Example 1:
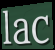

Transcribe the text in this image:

lac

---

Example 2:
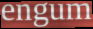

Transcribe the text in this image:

engum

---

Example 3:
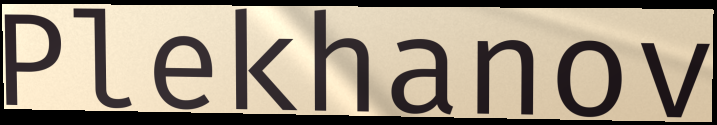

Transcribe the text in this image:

Plekhanov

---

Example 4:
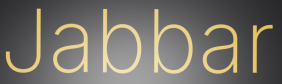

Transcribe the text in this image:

Jabbar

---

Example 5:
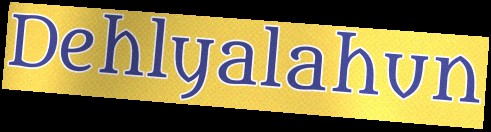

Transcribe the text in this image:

Dehlyalahun